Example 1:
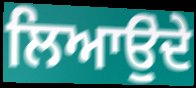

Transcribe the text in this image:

ਲਿਆਉੁਂਦੇ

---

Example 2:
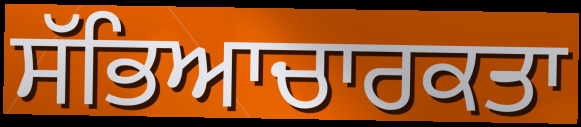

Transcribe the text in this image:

ਸੱਭਿਆਚਾਰਕਤਾ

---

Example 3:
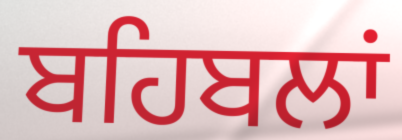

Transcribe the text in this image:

ਬਹਿਬਲਾਂ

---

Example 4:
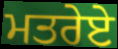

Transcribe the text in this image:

ਮਤਰੇਏ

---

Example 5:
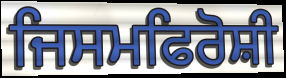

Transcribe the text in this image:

ਜਿਸਮਫਿਰੋਸ਼ੀ